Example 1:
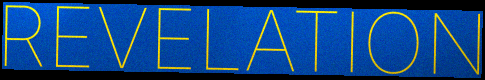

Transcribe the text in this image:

REVELATION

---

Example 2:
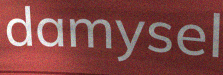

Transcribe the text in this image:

damysel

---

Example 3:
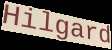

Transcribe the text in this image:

Hilgard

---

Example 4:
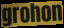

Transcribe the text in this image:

grohon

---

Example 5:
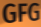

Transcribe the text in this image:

GFG